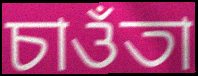
চাওঁতা